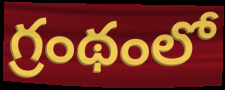
గ్రంథంలో